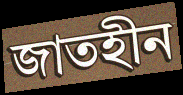
জাতহীন